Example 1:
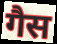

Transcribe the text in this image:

गैस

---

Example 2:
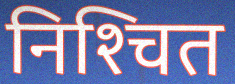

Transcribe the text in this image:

निश्चित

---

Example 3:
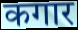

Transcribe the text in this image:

कगार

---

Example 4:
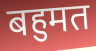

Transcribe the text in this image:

बहुमत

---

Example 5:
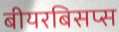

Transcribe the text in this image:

बीयरबिसप्स